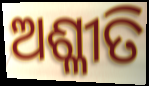
ଅଶ୍ଳୀତି